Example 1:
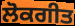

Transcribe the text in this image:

ਲੋਕਗੀਤ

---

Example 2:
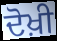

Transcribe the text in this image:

ਦੋਖ਼ੀ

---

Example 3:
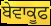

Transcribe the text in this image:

ਬੇਵਾਕੂਫ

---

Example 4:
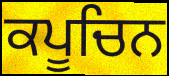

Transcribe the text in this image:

ਕਪੂਚਿਨ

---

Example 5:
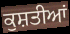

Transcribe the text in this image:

ਕੁਸ਼ਤੀਆਂ